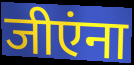
जीएंना